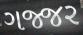
ગજ્જર